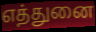
எத்துனை